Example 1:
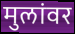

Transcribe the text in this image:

मुलांवर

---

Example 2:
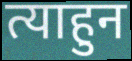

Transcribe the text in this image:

त्याहुन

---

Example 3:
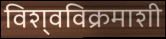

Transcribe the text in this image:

विश्वविक्रमाशी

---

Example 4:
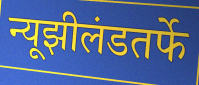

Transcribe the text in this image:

न्यूझीलंडतर्फे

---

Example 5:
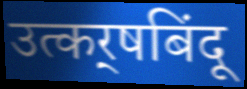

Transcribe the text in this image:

उत्कर्षबिंदू